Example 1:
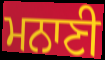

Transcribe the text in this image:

ਮਨਾਣੀ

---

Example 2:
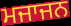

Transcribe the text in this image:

ਮਜਾਜਨ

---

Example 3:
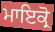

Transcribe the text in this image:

ਮਾਇਕ੍ਰੋ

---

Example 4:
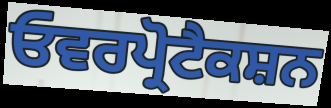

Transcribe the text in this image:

ਓਵਰਪ੍ਰੋਟੈਕਸ਼ਨ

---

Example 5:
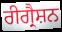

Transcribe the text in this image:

ਰੀਗ੍ਰੈਸ਼ਨ